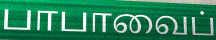
பாபாவைப்